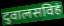
दुवालसविहं